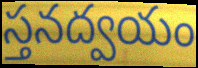
స్తనద్వయం